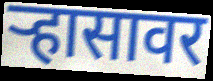
ऱ्हासावर